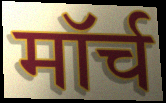
मॉर्च